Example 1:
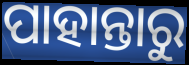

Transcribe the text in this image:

ପାହାନ୍ତାରୁ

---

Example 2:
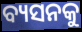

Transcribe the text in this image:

ବ୍ୟସନକୁ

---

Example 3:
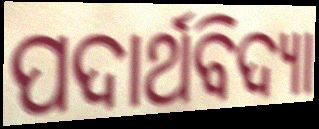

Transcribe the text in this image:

ପଦାର୍ଥବିଦ୍ୟା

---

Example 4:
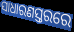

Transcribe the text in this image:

ସାଧାରଣସ୍ତରରେ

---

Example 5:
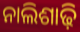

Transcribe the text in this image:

ନାଲିଶାଢ଼ି